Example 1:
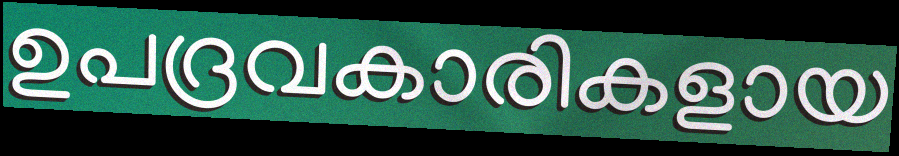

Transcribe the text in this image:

ഉപദ്രവകാരികളായ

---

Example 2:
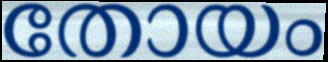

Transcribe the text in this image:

തോയം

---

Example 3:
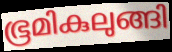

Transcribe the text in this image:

ഭൂമികുലുങ്ങി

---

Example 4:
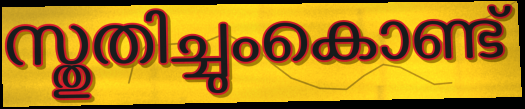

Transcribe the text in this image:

സ്തുതിച്ചുംകൊണ്ട്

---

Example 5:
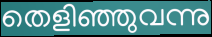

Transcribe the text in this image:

തെളിഞ്ഞുവന്നു